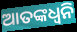
ଆତଙ୍କଧ୍ଵନି